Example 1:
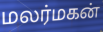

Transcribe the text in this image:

மலர்மகன்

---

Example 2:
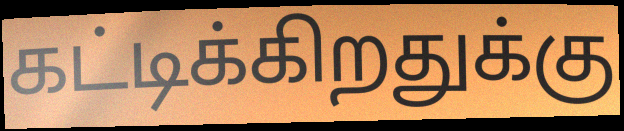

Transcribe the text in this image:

கட்டிக்கிறதுக்கு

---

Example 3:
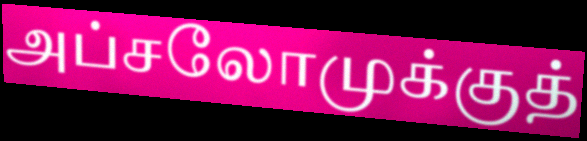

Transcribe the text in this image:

அப்சலோமுக்குத்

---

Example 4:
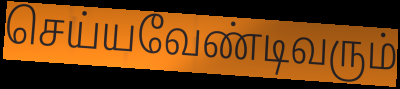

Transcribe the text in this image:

செய்யவேண்டிவரும்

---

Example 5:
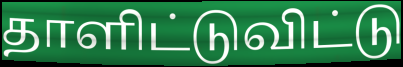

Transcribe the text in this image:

தாளிட்டுவிட்டு